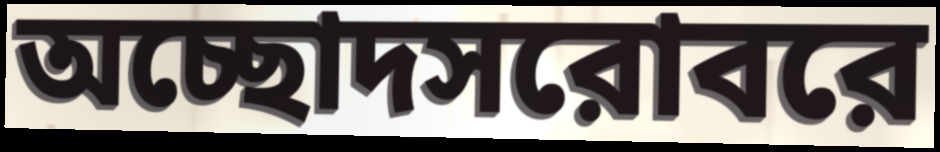
অচ্ছোদসরোবরে